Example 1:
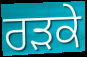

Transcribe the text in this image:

ਰੜਕੇ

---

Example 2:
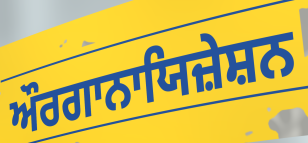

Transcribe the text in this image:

ਔਰਗਾਨਾਯਿਜ਼ੇਸ਼ਨ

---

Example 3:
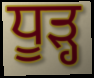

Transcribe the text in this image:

ਧੂੜ੍ਹ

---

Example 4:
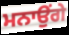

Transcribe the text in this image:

ਮਨਾਉਂਗੇ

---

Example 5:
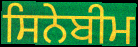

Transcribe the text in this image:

ਸਿਨੇਬੀਮ